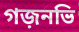
গজ়নভি